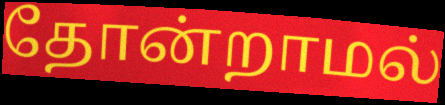
தோன்றாமல்